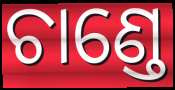
ଚାଣ୍ଡେ